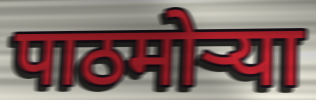
पाठमोऱ्या